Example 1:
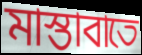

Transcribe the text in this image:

মাস্তাবাতে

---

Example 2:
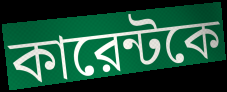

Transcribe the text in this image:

কারেন্টকে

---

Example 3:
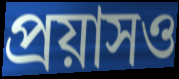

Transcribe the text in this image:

প্রয়াসও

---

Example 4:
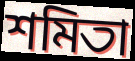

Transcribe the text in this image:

শমিতা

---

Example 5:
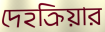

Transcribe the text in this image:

দেহক্রিয়ার